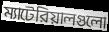
ম্যাটেরিয়ালগুলো